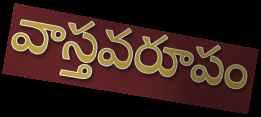
వాస్తవరూపం